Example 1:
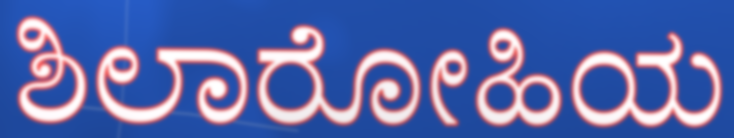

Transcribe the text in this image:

ಶಿಲಾರೋಹಿಯ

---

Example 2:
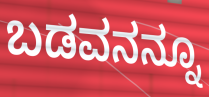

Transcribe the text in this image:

ಬಡವನನ್ನೂ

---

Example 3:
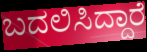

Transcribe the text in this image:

ಬದಲಿಸಿದ್ದಾರೆ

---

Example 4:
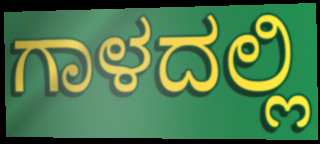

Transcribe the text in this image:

ಗಾಳದಲ್ಲಿ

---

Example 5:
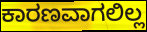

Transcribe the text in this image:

ಕಾರಣವಾಗಲಿಲ್ಲ